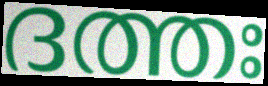
ദത്തഃ